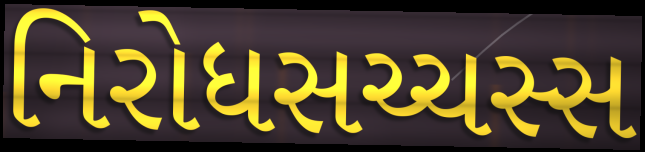
નિરોધસચ્ચસ્સ